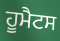
ਹੂਮੈਟਸ